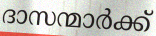
ദാസന്മാർക്ക്